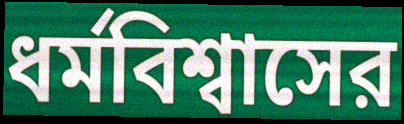
ধর্মবিশ্বাসের